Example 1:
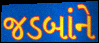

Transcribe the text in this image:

જડબાંને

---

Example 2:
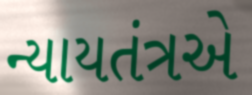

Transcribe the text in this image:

ન્યાયતંત્રએ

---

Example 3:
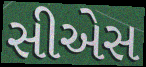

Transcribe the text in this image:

સીએસ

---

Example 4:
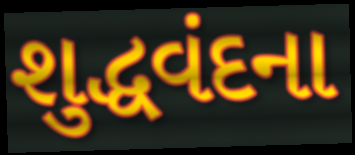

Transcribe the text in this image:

શુદ્ધવંદના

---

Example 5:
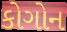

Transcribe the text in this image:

કોગોન